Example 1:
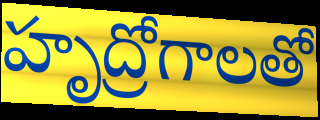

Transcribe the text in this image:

హృద్రోగాలతో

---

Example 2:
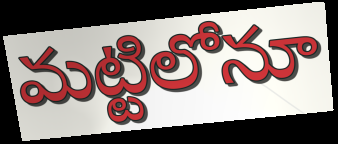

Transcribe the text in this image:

మట్టిలోనూ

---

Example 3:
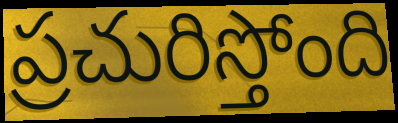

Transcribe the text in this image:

ప్రచురిస్తోంది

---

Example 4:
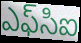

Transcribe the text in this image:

ఎఫ్‌సిఐ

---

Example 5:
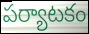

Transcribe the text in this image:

పర్యాటకం